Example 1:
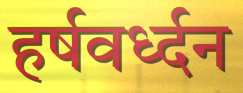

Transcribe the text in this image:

हर्षवर्ध्दन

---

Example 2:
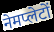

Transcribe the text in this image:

नेमप्लेटों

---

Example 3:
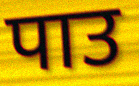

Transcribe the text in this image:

पाउ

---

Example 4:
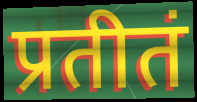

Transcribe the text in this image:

प्रतीतं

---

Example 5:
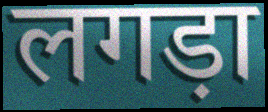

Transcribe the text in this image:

लगड़ा